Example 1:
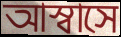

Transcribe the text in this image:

আস্বাসে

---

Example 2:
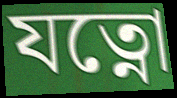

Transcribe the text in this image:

যত্নো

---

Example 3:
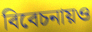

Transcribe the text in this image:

বিবেচনায়ও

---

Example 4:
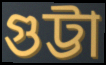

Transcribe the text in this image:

গুট্টা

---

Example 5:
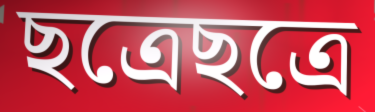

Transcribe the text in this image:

ছত্রেছত্রে